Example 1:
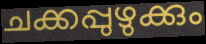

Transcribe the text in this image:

ചക്കപ്പുഴുക്കും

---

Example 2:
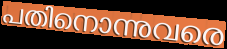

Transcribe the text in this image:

പതിനൊന്നുവരെ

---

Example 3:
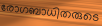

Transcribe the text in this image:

രോഗബാധിതരുടെ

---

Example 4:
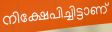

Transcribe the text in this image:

നിക്ഷേപിച്ചിട്ടാണ്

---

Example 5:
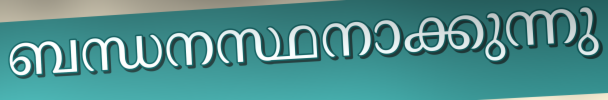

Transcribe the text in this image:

ബന്ധനസ്ഥനാക്കുന്നു